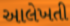
આલેખતી